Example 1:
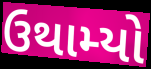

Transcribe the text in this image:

ઉથામ્યો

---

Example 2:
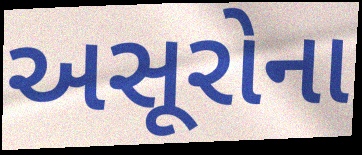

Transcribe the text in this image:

અસૂરોના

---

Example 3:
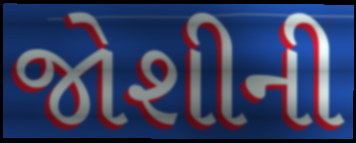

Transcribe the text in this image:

જોશીની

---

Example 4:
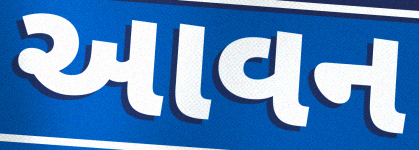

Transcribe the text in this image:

આવન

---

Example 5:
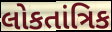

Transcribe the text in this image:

લોકતાંત્રિક